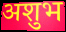
अशुभ